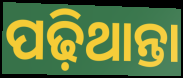
ପଢ଼ିଥାନ୍ତା